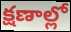
క్షణాల్లో